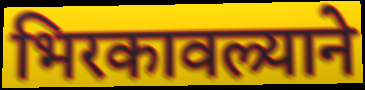
भिरकावल्याने